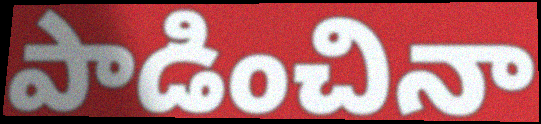
పాడించినా